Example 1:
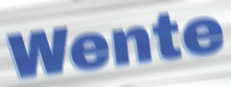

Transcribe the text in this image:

Wente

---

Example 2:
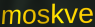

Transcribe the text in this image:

moskve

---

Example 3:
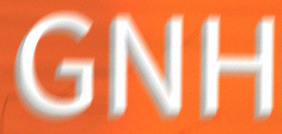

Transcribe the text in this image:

GNH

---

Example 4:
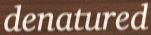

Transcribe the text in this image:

denatured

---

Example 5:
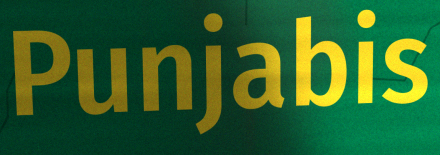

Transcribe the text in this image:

Punjabis